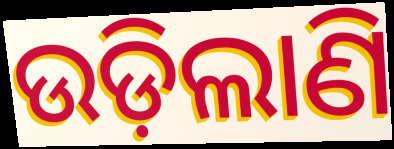
ଉଡ଼ିଲାଣି